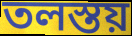
তলস্তয়